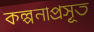
কল্পনাপ্ৰসূত